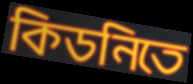
কিডনিতে